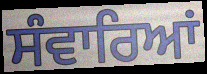
ਸੰਵਾਰਿਆਂ